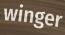
winger